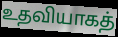
உதவியாகத்